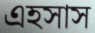
এহসাস